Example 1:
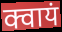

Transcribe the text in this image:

क्वायं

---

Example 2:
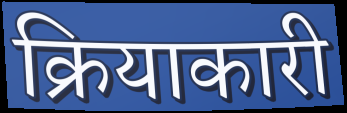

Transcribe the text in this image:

क्रियाकारी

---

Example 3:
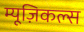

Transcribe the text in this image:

म्यूज़िकल्स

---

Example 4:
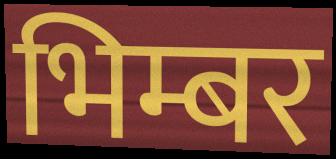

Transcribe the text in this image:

भिम्बर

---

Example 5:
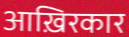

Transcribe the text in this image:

आख़िरकार